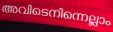
അവിടെനിന്നെല്ലാം